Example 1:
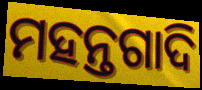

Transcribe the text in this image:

ମହନ୍ତଗାଦି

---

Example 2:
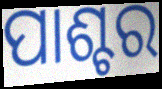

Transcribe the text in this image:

ପାଶ୍ଚର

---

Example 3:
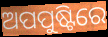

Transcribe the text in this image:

ଅପପୁଷ୍ଟିରେ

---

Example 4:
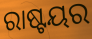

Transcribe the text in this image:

ରାଷ୍ଟୟର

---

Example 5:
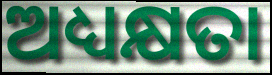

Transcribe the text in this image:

ଅଧ୍ୟକ୍ଷତା